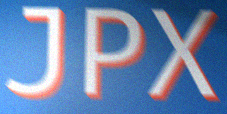
JPX